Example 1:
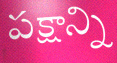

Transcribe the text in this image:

పక్షాన్ని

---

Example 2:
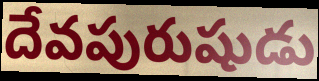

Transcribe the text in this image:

దేవపురుషుడు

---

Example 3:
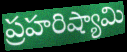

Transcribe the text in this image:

ప్రహరిష్యామి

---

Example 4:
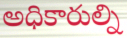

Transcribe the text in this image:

అధికారుల్ని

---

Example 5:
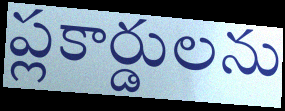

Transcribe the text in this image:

ప్లకార్డులను